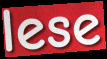
lese